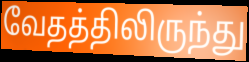
வேதத்திலிருந்து